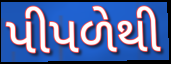
પીપળેથી